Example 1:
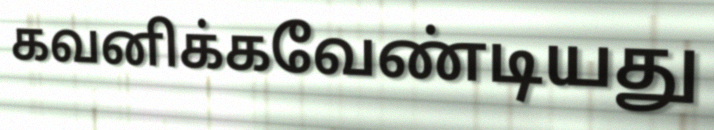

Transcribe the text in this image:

கவனிக்கவேண்டியது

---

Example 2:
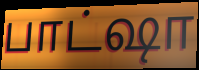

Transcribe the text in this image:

பாட்ஷா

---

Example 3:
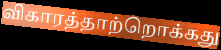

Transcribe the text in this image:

விகாரத்தாற்றொக்கது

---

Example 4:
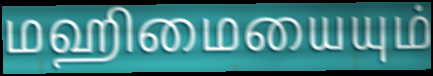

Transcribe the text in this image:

மஹிமையையும்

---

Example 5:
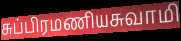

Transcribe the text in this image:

சுப்பிரமணியசுவாமி